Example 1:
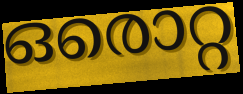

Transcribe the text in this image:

ഒരൊറ്റ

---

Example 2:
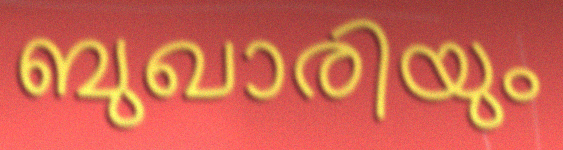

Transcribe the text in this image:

ബുഖാരിയും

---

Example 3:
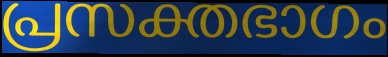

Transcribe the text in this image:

പ്രസക്തഭാഗം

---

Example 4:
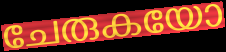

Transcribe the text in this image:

ചേരുകയോ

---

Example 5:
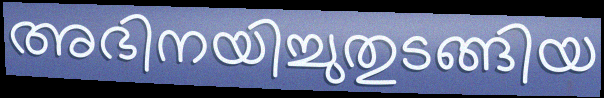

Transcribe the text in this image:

അഭിനയിച്ചുതുടങ്ങിയ